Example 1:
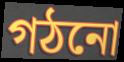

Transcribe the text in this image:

গঠনো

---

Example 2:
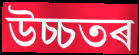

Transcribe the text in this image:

উচ্চতৰ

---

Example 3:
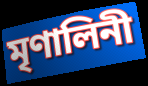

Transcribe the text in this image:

মৃণালিনী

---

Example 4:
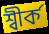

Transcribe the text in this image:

শ্বীৰ্ক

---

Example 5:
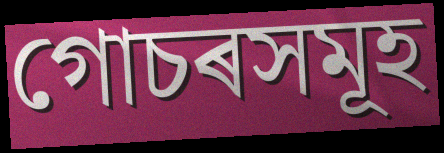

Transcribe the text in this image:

গোচৰসমূহ